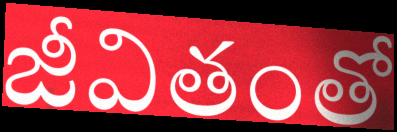
జీవితంతో